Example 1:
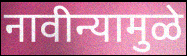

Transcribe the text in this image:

नावीन्यामुळे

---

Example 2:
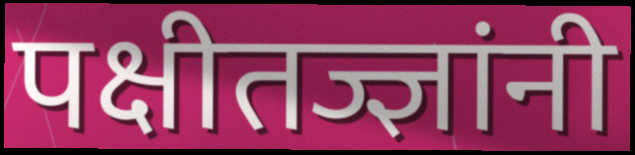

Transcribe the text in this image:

पक्षीतज्ज्ञांनी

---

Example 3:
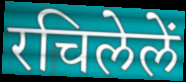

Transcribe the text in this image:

रचिलेलें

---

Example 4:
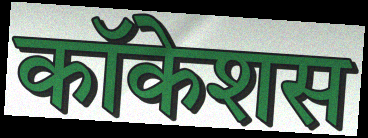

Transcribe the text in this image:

कॉकेशस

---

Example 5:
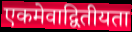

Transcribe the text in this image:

एकमेवाद्वितीयता